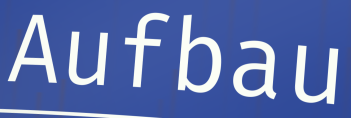
Aufbau